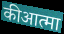
कीआत्मा